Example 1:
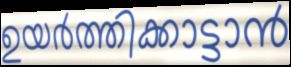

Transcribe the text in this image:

ഉയർത്തിക്കാട്ടാൻ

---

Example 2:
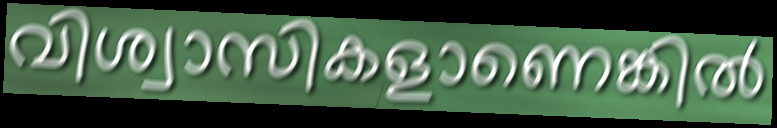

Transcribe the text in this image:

വിശ്വാസികളാണെങ്കിൽ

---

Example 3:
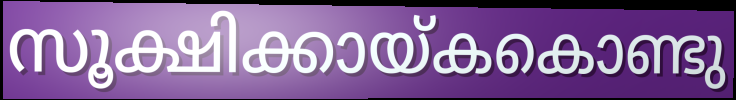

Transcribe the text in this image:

സൂക്ഷിക്കായ്കകൊണ്ടു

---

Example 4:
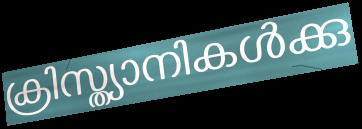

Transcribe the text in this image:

ക്രിസ്ത്യാനികൾക്കു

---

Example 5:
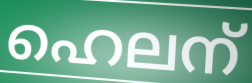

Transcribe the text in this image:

ഹെലന്